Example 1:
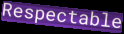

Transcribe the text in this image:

Respectable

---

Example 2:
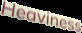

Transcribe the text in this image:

Heaviness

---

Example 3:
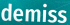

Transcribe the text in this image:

demiss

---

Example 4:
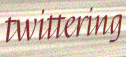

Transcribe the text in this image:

twittering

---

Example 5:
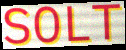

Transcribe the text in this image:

SOLT